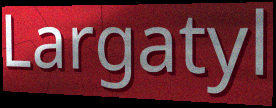
Largatyl